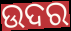
ଉଦର